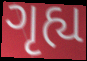
ગૃહ્ય